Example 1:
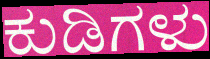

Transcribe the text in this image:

ಕುಡಿಗಳು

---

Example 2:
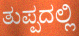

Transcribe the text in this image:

ತುಪ್ಪದಲ್ಲಿ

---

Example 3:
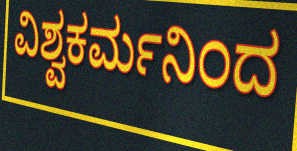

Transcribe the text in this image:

ವಿಶ್ವಕರ್ಮನಿಂದ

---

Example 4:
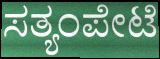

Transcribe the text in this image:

ಸತ್ಯಂಪೇಟೆ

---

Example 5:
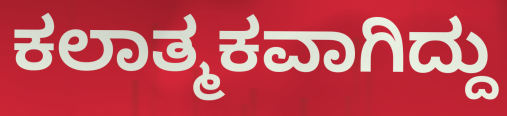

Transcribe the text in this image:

ಕಲಾತ್ಮಕವಾಗಿದ್ದು